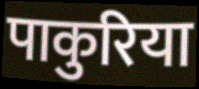
पाकुरिया